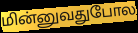
மின்னுவதுபோல